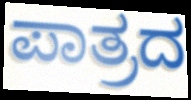
ಪಾತ್ರದ